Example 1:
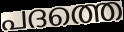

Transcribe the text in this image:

പദത്തെ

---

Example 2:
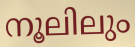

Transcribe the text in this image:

നൂലിലും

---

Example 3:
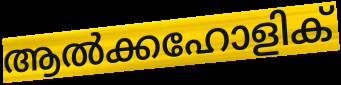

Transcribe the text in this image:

ആൽക്കഹോളിക്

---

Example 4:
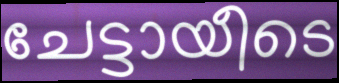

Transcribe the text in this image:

ചേട്ടായീടെ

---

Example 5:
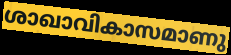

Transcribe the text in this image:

ശാഖാവികാസമാണു